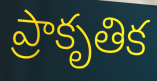
ప్రాకృతిక